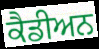
ਕੈਡੀਅਨ